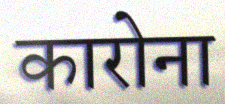
कारोना